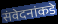
संवेदनांकडे